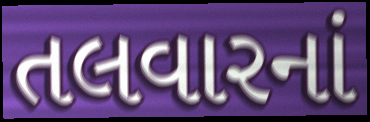
તલવારનાં